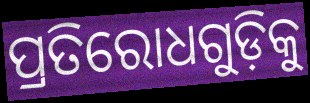
ପ୍ରତିରୋଧଗୁଡ଼ିକୁ